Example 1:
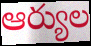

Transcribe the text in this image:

ఆర్యుల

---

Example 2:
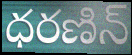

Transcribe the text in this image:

ధరణిన్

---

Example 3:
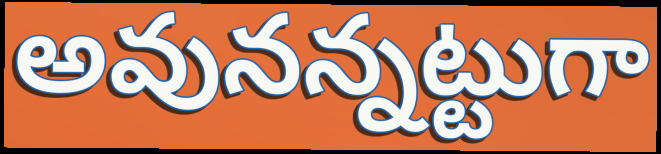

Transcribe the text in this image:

అవునన్నట్టుగా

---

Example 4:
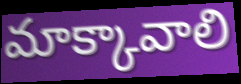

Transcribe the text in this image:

మాక్కావాలి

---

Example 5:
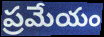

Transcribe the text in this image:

ప్రమేయం